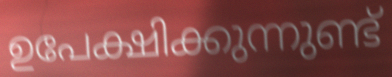
ഉപേക്ഷിക്കുന്നുണ്ട്